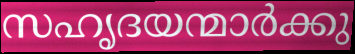
സഹൃദയന്മാർക്കു